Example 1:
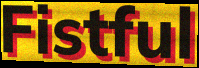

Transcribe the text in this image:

Fistful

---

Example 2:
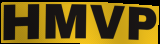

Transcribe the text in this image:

HMVP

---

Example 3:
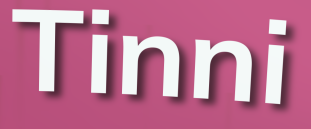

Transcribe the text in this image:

Tinni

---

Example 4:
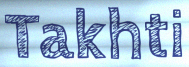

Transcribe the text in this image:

Takhti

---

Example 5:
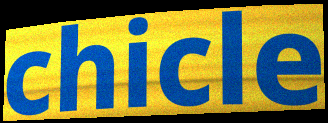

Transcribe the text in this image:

chicle